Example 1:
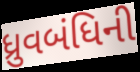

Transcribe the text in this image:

ધ્રુવબંધિની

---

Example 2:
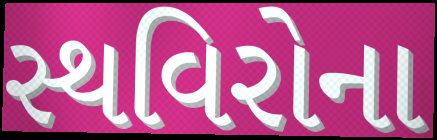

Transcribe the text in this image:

સ્થવિરોના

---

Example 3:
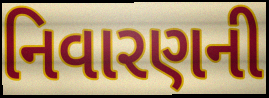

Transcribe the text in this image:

નિવારણની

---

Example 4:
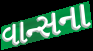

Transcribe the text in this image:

વાન્સના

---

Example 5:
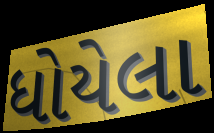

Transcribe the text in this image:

ધોયેલા